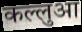
कल्लुआ